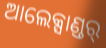
ଆଲେକ୍ସାଣ୍ଡର୍